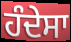
ਹੰਦੇਸਾ